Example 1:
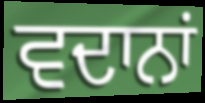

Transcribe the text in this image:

ਵਦਾਨਾਂ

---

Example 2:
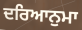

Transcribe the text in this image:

ਦਰਿਆਨੁਮਾ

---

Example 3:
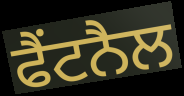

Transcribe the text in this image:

ਫੈਂਟਨੈਲ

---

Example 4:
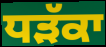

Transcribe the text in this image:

ਧੜੱਕਾ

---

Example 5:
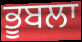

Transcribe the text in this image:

ਭੂਬਲਾ